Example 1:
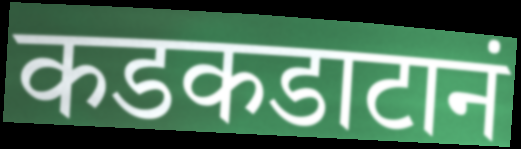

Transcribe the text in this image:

कडकडाटानं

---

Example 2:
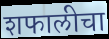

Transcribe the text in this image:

शफालीचा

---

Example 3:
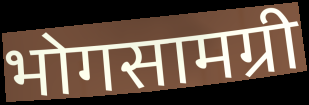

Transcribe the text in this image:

भोगसामग्री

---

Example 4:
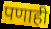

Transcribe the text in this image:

पणाही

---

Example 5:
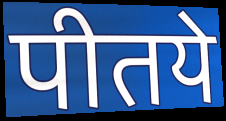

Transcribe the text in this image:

पीतये